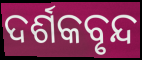
ଦର୍ଶକବୃନ୍ଦ